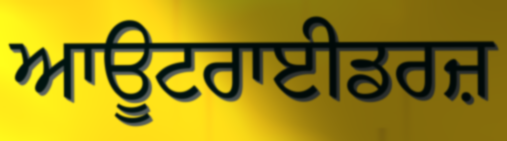
ਆਊਟਰਾਈਡਰਜ਼